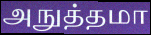
அநுத்தமா